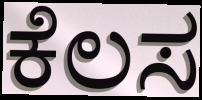
ಕೆಲಸ